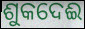
ଶୁକଦେଈ